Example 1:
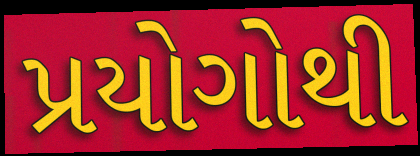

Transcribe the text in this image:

પ્રયોગોથી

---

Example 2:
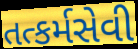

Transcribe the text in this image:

તત્કર્મસેવી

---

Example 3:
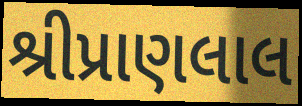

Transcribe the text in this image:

શ્રીપ્રાણલાલ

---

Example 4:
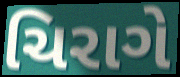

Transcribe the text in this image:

ચિરાગે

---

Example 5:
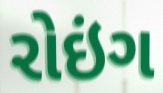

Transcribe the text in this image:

રોઇંગ